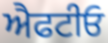
ਐਫਟੀਓ